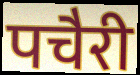
पचैरी